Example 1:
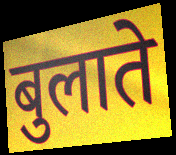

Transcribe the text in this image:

बुलाते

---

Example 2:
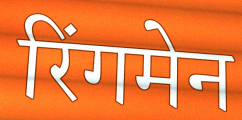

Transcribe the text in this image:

रिंगमेन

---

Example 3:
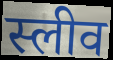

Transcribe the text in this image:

स्लीव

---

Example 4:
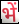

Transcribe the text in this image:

भें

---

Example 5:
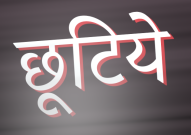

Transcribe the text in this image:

छूटिये